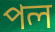
পল